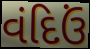
વંદિઉં